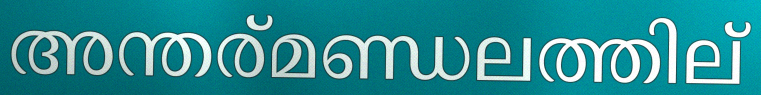
അന്തര്മണ്ഡലത്തില്